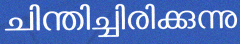
ചിന്തിച്ചിരിക്കുന്നു